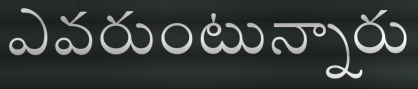
ఎవరుంటున్నారు